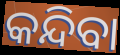
କନ୍ଦିବା